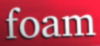
foam